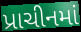
પ્રાચીનમાં